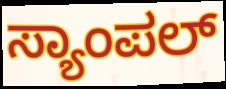
ಸ್ಯಾಂಪಲ್